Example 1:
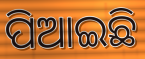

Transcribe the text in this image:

ପିଆଇଛି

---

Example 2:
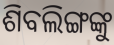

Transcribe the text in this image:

ଶିବଲିଙ୍ଗଙ୍କୁ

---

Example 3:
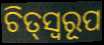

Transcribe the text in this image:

ଚିତ୍‌ସ୍ୱରୂପ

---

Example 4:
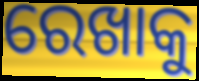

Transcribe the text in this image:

ରେଖାକୁ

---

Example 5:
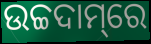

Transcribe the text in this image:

ଉଚ୍ଚଦାମ୍‌ରେ